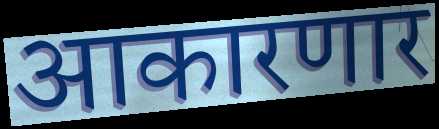
आकारणार